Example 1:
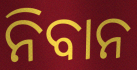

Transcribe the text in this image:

ନିବାନ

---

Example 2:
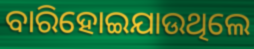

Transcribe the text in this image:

ବାରିହୋଇଯାଉଥିଲେ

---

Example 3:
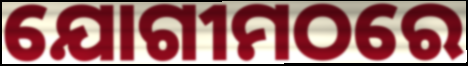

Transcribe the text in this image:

ଯୋଗୀମଠରେ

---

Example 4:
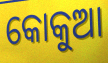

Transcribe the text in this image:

କୋକୁଆ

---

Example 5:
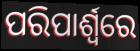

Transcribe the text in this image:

ପରିପାର୍ଶ୍ୱରେ